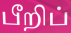
பீறிப்